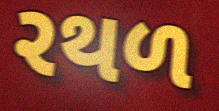
રથળ